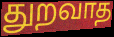
துறவாத